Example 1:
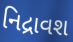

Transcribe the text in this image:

નિદ્રાવશ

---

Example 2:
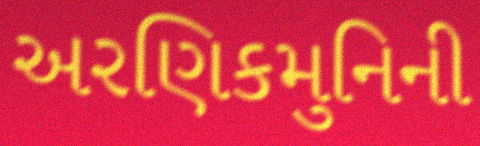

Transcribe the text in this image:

અરણિકમુનિની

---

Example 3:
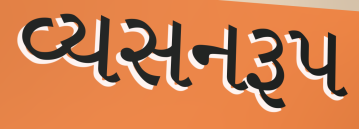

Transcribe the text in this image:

વ્યસનરૂપ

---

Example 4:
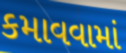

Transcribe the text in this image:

કમાવવામાં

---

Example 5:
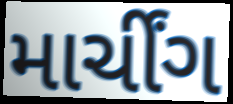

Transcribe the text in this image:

માર્ચીંગ